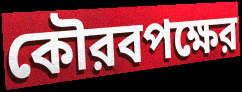
কৌরবপক্ষের